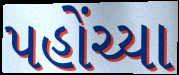
પહોંચ્યા